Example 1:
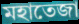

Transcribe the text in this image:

মহাতেজা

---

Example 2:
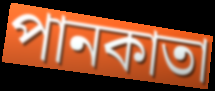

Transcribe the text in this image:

পানকাতা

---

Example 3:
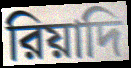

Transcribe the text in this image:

রিয়াদি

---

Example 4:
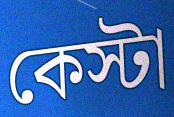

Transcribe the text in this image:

কেস্টা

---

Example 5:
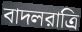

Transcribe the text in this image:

বাদলরাত্রি